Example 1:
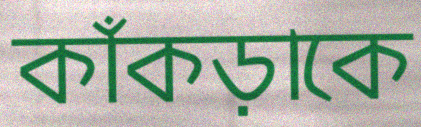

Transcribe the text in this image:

কাঁকড়াকে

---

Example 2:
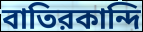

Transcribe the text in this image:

বাতিরকান্দি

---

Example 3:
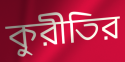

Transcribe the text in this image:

কুরীতির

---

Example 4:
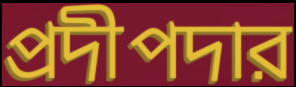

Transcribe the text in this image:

প্রদীপদার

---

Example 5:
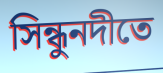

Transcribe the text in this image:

সিন্ধুনদীতে